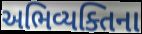
અભિવ્યક્તિના